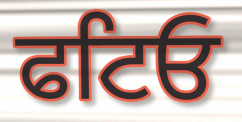
ਫਟਿਓ